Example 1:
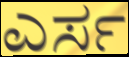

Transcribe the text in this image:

ಎರ್ಸ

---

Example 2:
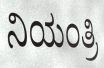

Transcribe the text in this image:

ನಿಯಂತ್ರಿ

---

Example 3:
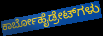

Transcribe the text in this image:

ಕಾರ್ಬೋಹೈಡ್ರೇಟ್‌ಗಳು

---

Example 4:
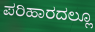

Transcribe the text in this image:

ಪರಿಹಾರದಲ್ಲೂ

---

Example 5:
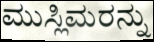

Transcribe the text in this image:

ಮುಸ್ಲಿಮರನ್ನು